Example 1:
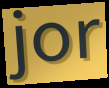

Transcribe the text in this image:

jor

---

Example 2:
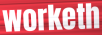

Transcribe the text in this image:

worketh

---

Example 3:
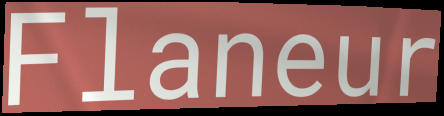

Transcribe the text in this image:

Flaneur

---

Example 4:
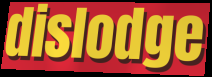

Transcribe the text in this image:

dislodge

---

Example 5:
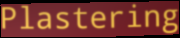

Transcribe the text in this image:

Plastering